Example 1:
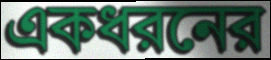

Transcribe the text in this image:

একধরনের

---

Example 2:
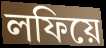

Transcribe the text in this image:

লফিয়ে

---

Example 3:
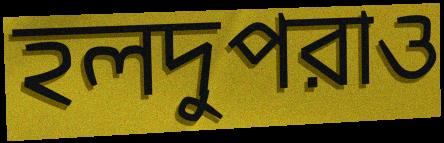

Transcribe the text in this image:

হলদুপরাও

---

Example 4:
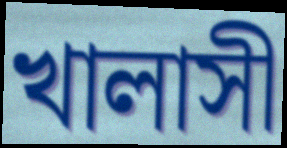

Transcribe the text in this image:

খালাসী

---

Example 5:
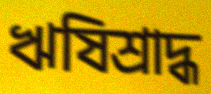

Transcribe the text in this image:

ঋষিশ্রাদ্ধ